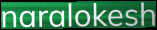
naralokesh